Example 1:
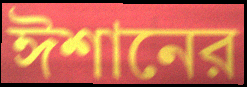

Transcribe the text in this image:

ঈশানের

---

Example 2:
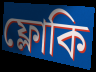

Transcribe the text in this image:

ফ্লোকি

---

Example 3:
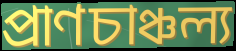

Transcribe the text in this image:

প্রাণচাঞ্চল্য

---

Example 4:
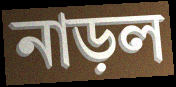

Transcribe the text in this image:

নাড়ল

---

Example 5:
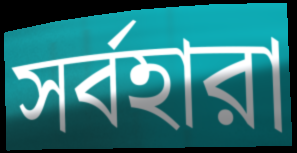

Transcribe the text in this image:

সর্বহারা